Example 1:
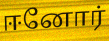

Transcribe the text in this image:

ஈனோர்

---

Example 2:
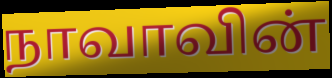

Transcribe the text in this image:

நாவாவின்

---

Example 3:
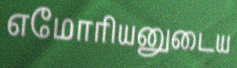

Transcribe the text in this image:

எமோரியனுடைய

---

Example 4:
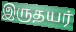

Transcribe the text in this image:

இருதயர்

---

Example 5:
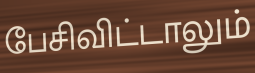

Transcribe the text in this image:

பேசிவிட்டாலும்